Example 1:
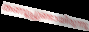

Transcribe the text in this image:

തണൂപ്പുണ്ടായിരുന്നു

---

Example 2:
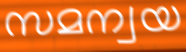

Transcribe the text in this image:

സമന്വയ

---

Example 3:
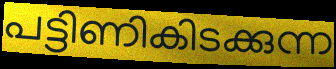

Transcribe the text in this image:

പട്ടിണികിടക്കുന്ന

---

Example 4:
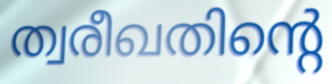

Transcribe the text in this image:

ത്വരീഖതിന്റെ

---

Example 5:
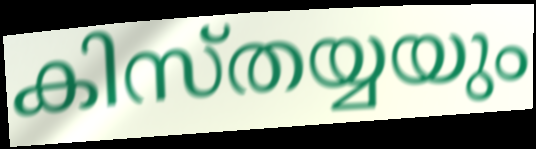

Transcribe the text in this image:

കിസ്തയ്യയും